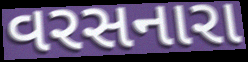
વરસનારા